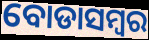
ବୋଡାସମ୍ବର